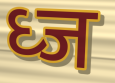
ध्ज